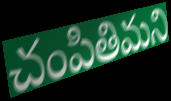
చంపితిమని